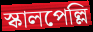
স্কালপেল্লি